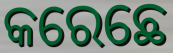
କରେଛେ